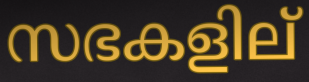
സഭകളില്